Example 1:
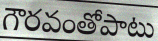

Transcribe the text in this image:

గౌరవంతోపాటు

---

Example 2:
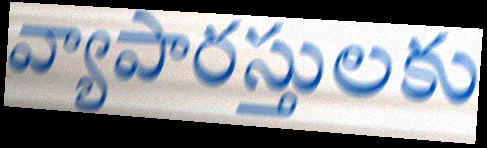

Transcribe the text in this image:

వ్యాపారస్తులకు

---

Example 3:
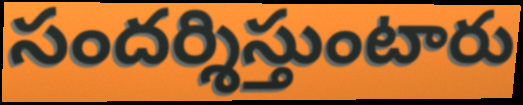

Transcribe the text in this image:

సందర్శిస్తుంటారు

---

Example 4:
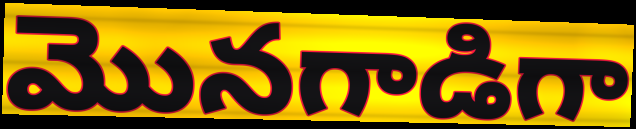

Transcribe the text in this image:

మొనగాడిగా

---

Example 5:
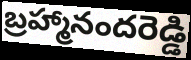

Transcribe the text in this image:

బ్రహ్మానందరెడ్డి